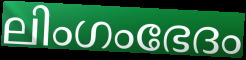
ലിംഗംഭേദം